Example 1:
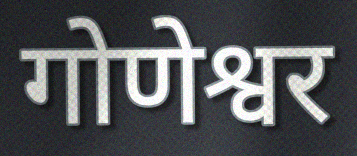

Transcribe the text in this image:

गोणेश्वर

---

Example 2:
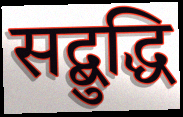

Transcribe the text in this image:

सद्बुद्धि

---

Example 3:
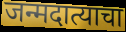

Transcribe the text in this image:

जन्मदात्याचा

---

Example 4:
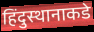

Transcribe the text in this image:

हिंदुस्थानाकडे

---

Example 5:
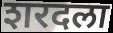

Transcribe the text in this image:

शरदला